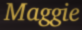
Maggie